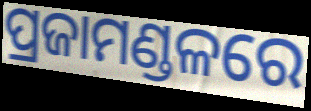
ପ୍ରଜାମଣ୍ଡଳରେ